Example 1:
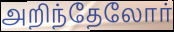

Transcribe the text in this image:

அறிந்தேலோர்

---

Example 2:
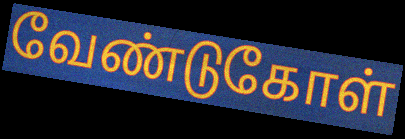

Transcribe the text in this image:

வேண்டுகோள்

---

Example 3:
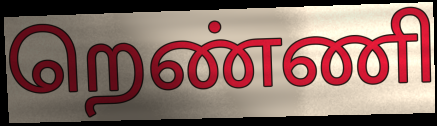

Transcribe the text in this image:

றெண்ணி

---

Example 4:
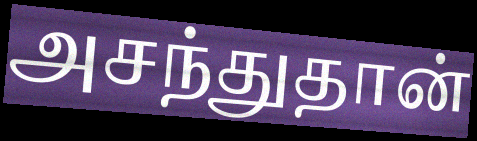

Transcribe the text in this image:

அசந்துதான்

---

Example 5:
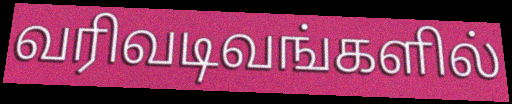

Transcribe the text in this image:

வரிவடிவங்களில்